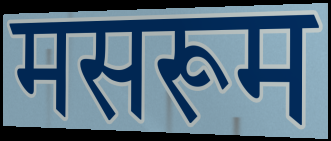
मसरूम